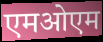
एमओएम